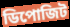
ডিপোজিট